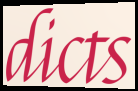
dicts